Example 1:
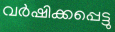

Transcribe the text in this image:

വർഷിക്കപ്പെട്ടു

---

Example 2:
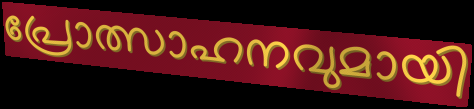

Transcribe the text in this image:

പ്രോത്സാഹനവുമായി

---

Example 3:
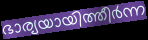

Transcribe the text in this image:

ഭാര്യയായിത്തീർന്ന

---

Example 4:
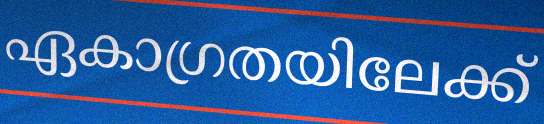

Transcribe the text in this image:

ഏകാഗ്രതയിലേക്ക്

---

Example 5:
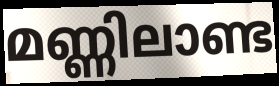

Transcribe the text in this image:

മണ്ണിലാണ്ട